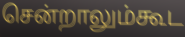
சென்றாலும்கூட